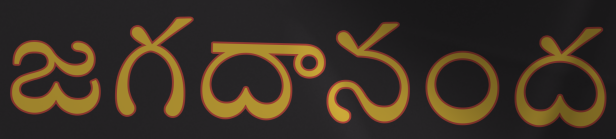
జగదానంద